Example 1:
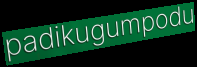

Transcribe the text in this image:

padikugumpodu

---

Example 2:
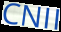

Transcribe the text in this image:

CNII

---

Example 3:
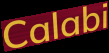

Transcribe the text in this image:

Calabi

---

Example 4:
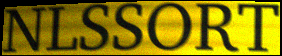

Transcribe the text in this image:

NLSSORT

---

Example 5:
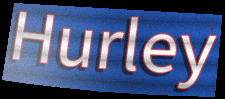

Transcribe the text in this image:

Hurley